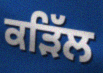
ਕੜਿੱਲ